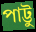
পাট্টু